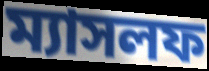
ম্যাসলফ